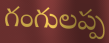
గంగులప్ప